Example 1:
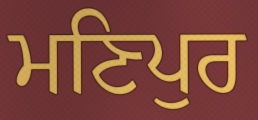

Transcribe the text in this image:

ਮਣਿਪੁਰ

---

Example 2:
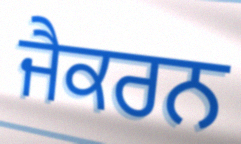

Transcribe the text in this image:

ਜੈਕਰਨ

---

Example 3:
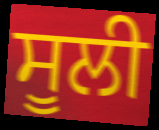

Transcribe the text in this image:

ਸੂਲੀ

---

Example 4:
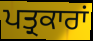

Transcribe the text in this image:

ਪਤ੍ਰਕਾਰਾਂ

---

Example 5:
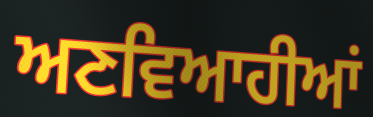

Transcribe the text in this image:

ਅਣਵਿਆਹੀਆਂ